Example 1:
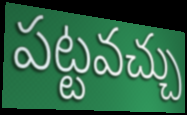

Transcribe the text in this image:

పట్టవచ్చు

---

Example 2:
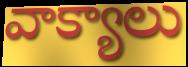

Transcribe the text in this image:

వాక్యాలు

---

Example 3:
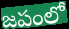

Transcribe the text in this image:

జపంలో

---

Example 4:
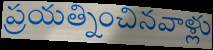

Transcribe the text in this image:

ప్రయత్నించినవాళ్లు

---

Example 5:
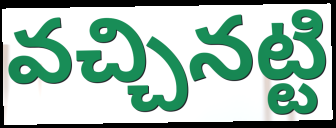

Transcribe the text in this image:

వచ్చినట్టి